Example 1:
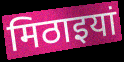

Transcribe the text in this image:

मिठाइयां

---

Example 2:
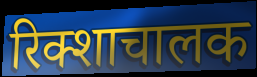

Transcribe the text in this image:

रिक्शाचालक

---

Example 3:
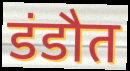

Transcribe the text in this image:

डंडौत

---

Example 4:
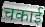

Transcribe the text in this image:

चकाई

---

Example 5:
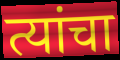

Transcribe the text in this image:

त्यांचा